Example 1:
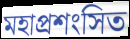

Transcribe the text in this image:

মহাপ্রশংসিত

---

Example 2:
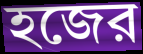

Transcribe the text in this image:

হজের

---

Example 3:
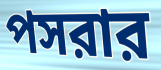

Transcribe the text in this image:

পসরার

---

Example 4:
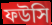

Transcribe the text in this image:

ফউসি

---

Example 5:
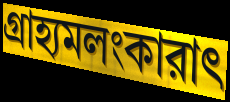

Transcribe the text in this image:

গ্রাহ্যমলংকারাৎ